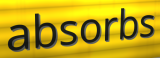
absorbs